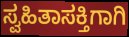
ಸ್ವಹಿತಾಸಕ್ತಿಗಾಗಿ